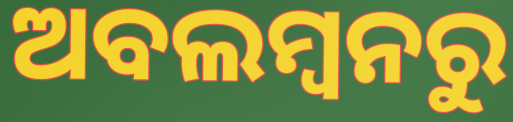
ଅବଲମ୍ବନରୁ